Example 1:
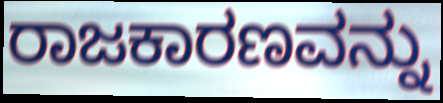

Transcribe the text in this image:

ರಾಜಕಾರಣವನ್ನು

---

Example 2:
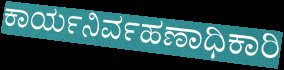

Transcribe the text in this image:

ಕಾರ್ಯನಿರ್ವಹಣಾಧಿಕಾರಿ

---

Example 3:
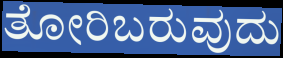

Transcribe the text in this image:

ತೋರಿಬರುವುದು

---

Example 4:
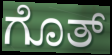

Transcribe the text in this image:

ಗೊತ್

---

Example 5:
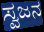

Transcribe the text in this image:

ಸ್ವಜನ